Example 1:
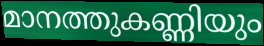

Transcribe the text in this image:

മാനത്തുകണ്ണിയും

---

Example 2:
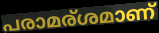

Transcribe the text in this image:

പരാമര്ശമാണ്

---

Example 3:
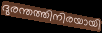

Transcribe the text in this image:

ദുരന്തത്തിനിരയായി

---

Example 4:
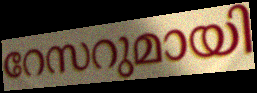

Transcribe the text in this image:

റേസറുമായി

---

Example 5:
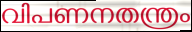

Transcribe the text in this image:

വിപണനതന്ത്രം